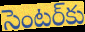
సెంటర్‌కు